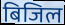
बिजिल